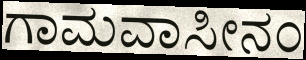
ಗಾಮವಾಸೀನಂ